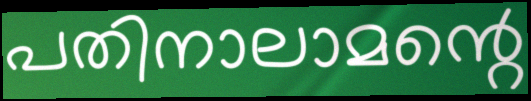
പതിനാലാമന്റെ